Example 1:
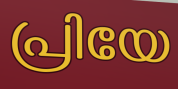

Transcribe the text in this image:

പ്രിയേ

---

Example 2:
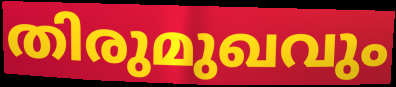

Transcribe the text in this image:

തിരുമുഖവും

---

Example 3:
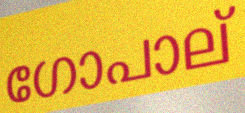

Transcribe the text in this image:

ഗോപാല്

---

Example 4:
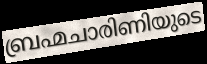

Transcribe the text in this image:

ബ്രഹ്മചാരിണിയുടെ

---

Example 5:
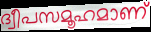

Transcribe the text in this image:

ദ്വീപസമൂഹമാണ്